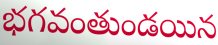
భగవంతుండయిన